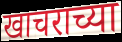
खाचराच्या